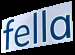
fella